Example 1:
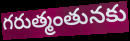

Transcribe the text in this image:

గరుత్మంతునకు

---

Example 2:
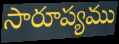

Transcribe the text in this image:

సారూప్యము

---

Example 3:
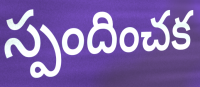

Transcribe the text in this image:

స్పందించక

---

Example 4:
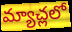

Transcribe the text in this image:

మ్యాచ్లలో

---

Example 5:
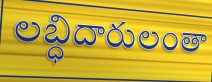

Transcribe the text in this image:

లబ్ధిదారులంతా